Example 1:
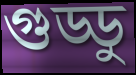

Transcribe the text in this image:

গুড্ডু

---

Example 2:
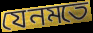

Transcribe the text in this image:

যেনমতে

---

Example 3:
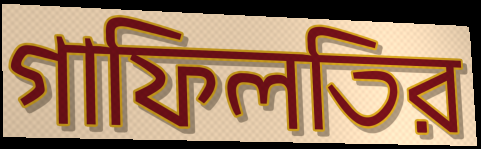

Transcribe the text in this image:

গাফিলতির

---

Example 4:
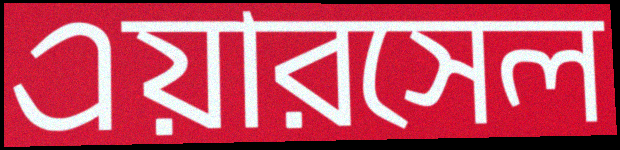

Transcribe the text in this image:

এয়ারসেল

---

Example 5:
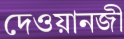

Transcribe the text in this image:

দেওয়ানজী